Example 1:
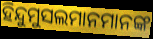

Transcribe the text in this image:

ହିନ୍ଦୁମୁସଲମାନମାନଙ୍କ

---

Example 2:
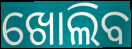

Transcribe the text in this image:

ଖୋଲିବ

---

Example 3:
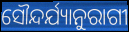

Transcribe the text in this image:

ସୌନ୍ଦର୍ଯ୍ୟାନୁରାଗୀ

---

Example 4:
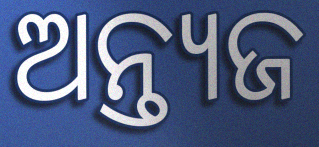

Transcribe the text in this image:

ଅନ୍ତ୍ୟଜ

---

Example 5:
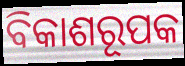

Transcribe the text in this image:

ବିକାଶରୂପକ